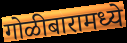
गोळीबारामध्ये